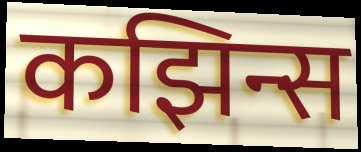
कझिन्स